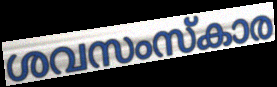
ശവസംസ്കാര